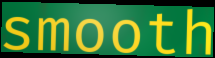
smooth